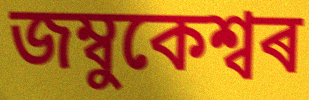
জম্বুকেশ্বৰ